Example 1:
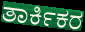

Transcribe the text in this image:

ತಾರ್ಕಿಕರ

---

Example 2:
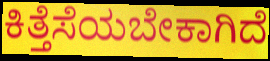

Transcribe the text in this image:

ಕಿತ್ತೆಸೆಯಬೇಕಾಗಿದೆ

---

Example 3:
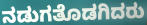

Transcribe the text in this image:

ನಡುಗತೊಡಗಿದರು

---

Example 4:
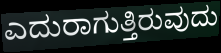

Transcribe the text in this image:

ಎದುರಾಗುತ್ತಿರುವುದು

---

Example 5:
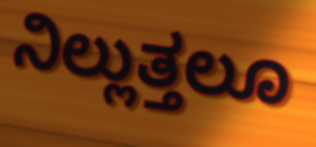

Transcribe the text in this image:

ನಿಲ್ಲುತ್ತಲೂ